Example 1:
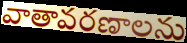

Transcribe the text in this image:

వాతావరణాలను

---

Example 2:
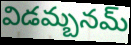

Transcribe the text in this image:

విడమ్బనమ్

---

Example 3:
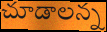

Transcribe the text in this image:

చూడాలన్న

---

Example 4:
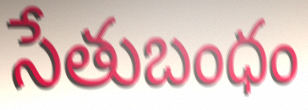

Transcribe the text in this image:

సేతుబంధం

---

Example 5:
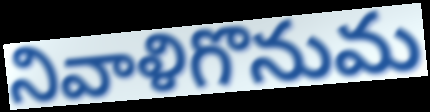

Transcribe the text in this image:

నివాళిగొనుమ